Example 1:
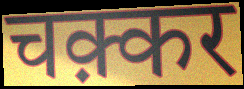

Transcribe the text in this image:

चक़्कर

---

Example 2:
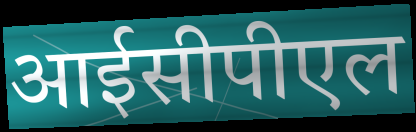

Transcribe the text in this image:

आईसीपीएल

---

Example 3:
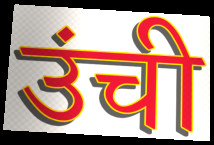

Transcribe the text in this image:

उंची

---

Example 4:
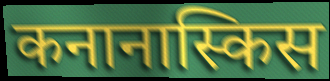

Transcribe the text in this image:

कनानास्किस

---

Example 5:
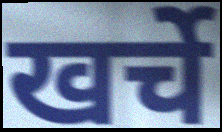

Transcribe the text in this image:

खर्चे